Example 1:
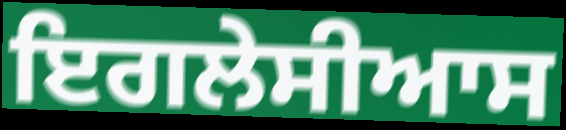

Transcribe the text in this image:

ਇਗਲੇਸੀਆਸ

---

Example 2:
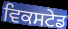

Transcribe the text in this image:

ਵਿਕਸਟੇਡ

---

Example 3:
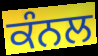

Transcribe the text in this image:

ਕੰਨਲ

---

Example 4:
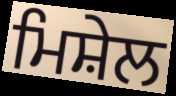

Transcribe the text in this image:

ਮਿਸ਼ੇਲ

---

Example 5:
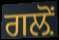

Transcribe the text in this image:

ਗਲ਼ੋਂ